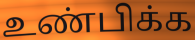
உண்பிக்க